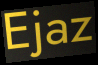
Ejaz